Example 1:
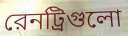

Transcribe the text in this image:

রেনট্রিগুলো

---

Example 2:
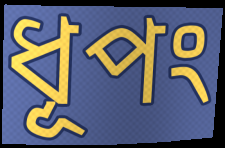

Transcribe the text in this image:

ধূপং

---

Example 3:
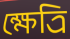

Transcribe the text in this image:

ক্ষেত্রি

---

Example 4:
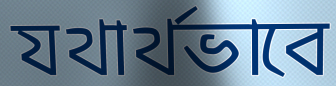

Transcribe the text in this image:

যথার্থভাবে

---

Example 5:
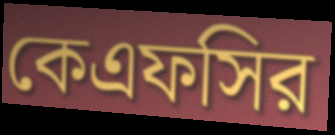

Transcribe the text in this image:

কেএফসির